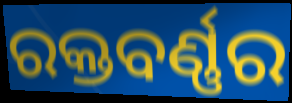
ରକ୍ତବର୍ଣ୍ଣର